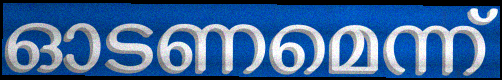
ഓടണമെന്ന്